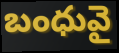
బంధువై